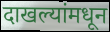
दाखल्यांमधून